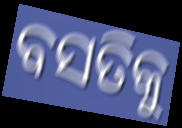
ବସତିକୁ